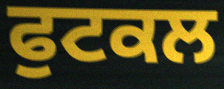
ਫੁਟਕਲ